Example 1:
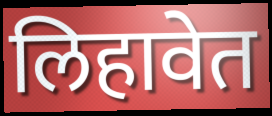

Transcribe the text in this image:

लिहावेत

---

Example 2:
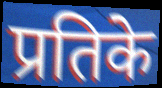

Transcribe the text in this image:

प्रतिके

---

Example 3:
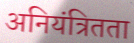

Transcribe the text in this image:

अनियंत्रितता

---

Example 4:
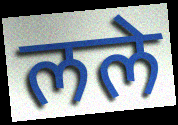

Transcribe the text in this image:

लले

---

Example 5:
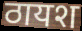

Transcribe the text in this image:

ठायश